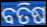
ବତିଷ